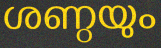
ശണ്ഠയും